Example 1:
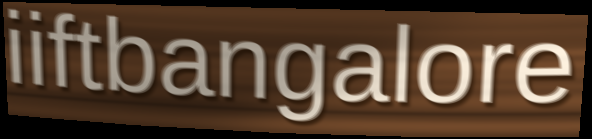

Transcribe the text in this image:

iiftbangalore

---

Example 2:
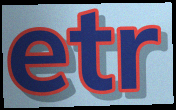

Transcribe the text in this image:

etr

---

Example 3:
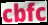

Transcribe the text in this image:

cbfc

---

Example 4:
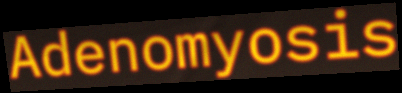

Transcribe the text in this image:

Adenomyosis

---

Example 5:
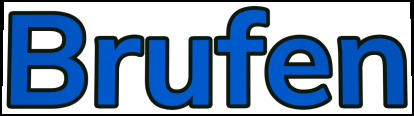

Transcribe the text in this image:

Brufen